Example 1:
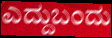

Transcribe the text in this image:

ಎದ್ದುಬಂದು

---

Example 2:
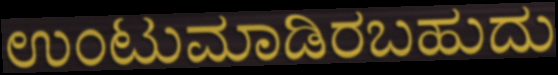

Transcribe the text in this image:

ಉಂಟುಮಾಡಿರಬಹುದು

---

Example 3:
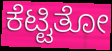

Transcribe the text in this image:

ಕೆಟ್ಟಿತೋ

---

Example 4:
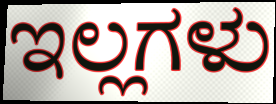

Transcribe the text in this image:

ಇಲ್ಲಗಳು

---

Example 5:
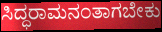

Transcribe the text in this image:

ಸಿದ್ಧರಾಮನಂತಾಗಬೇಕು